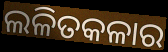
ଲଳିତକଳାର